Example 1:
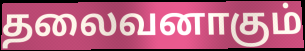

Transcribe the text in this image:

தலைவனாகும்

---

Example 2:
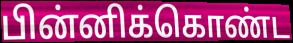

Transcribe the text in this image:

பின்னிக்கொண்ட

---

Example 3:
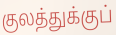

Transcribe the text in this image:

குலத்துக்குப்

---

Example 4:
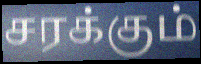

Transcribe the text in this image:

சரக்கும்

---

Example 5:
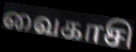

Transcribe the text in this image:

வைகாசி